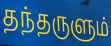
தந்தருளும்